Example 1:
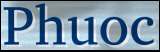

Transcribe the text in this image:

Phuoc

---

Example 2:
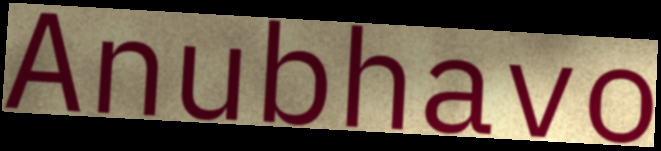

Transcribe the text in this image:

Anubhavo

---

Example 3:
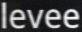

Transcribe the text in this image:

levee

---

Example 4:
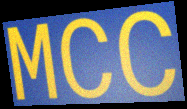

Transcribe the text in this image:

MCC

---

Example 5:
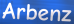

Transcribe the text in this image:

Arbenz